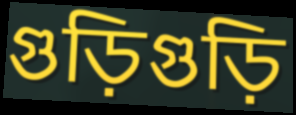
গুড়িগুড়ি